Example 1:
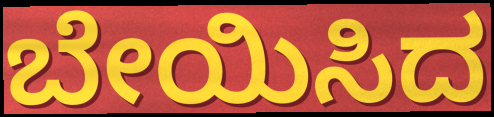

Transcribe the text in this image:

ಬೇಯಿಸಿದ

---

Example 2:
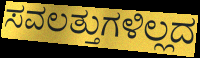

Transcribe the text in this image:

ಸವಲತ್ತುಗಳಿಲ್ಲದ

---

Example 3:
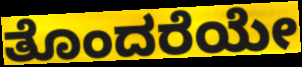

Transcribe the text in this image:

ತೊಂದರೆಯೇ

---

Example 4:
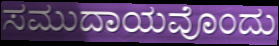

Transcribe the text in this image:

ಸಮುದಾಯವೊಂದು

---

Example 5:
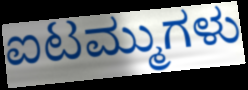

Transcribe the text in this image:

ಐಟಮ್ಮುಗಳು